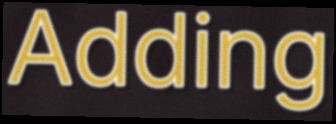
Adding